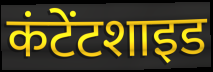
कंटेंटशाइड